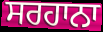
ਸਰਹਾਨਾ